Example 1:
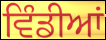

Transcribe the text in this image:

ਵਿੰਡੀਆਂ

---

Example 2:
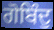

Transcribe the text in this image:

ਗੋਬਿੰਦੁ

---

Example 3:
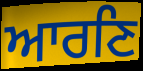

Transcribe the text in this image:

ਆਰਣਿ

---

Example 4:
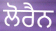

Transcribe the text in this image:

ਲੋਰੈਨ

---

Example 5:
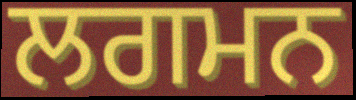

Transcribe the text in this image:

ਲਗਮਨ